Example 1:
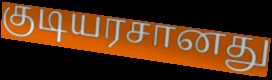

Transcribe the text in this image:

குடியரசானது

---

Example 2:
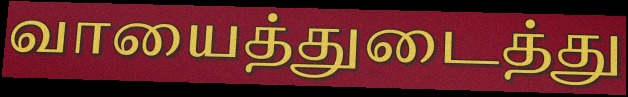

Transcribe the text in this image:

வாயைத்துடைத்து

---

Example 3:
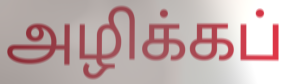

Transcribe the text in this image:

அழிக்கப்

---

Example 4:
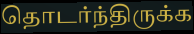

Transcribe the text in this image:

தொடர்ந்திருக்க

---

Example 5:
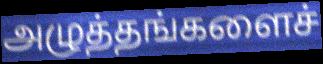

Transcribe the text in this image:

அழுத்தங்களைச்